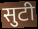
सुटी